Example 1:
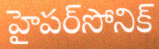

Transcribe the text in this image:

హైపర్‌సోనిక్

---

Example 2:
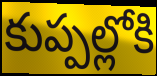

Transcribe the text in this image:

కుప్పల్లోకి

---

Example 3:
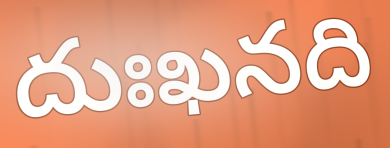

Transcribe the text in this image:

దుఃఖనది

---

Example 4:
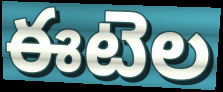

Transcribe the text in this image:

ఈటెల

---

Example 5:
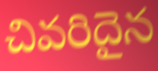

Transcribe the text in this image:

చివరిదైన